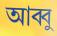
আব্বু